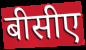
बीसीए